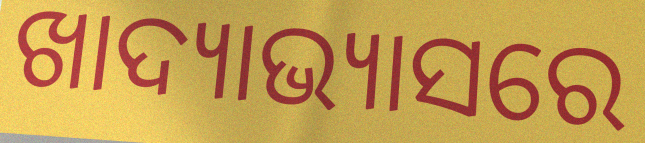
ଖାଦ୍ୟାଭ୍ୟାସରେ